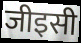
जीइसी